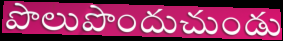
పొలుపొందుచుండు